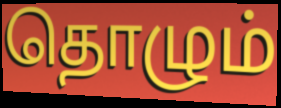
தொழும்